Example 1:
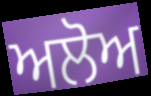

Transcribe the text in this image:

ਅਲੋਅ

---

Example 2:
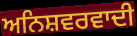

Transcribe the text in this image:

ਅਨਿਸ਼ਵਰਵਾਦੀ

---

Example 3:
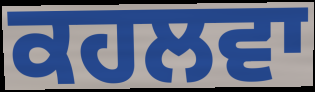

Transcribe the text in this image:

ਕਹਲਵਾ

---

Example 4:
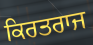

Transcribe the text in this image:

ਕਿਰਤਰਾਜ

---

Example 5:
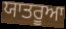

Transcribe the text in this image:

ਯਾਤਰੂਆ